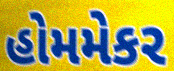
હોમમેકર